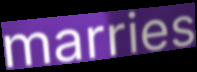
marries